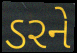
ડરને